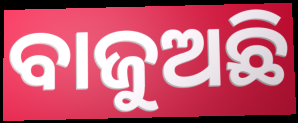
ବାଜୁଅଛି